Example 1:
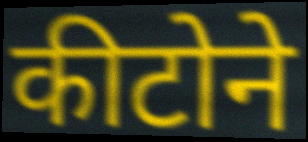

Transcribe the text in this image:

कीटोने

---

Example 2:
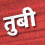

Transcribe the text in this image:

तुबी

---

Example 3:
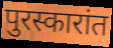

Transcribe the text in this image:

पुरस्कारांत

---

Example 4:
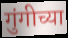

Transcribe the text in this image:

गुंगीच्या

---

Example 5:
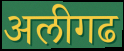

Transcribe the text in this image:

अलीगढ